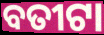
ବତୀଟା